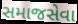
સમાજસેવા